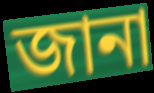
জানা